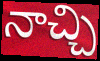
నాచ్చి